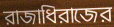
রাজাধিরাজের